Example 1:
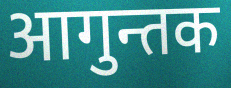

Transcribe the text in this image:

आगुन्तक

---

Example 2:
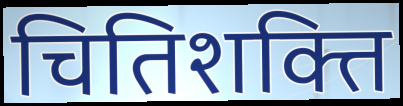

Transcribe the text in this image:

चितिशक्ति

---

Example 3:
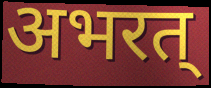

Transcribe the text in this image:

अभरत्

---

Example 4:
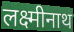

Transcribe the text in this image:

लक्ष्मीनाथ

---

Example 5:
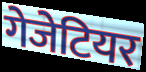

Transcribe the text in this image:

गेजेटियर